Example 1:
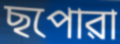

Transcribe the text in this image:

ছপোৱা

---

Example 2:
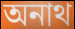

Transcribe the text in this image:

অনাথ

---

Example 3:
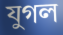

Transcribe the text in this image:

যুগল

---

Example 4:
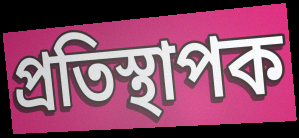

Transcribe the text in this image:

প্ৰতিস্থাপক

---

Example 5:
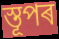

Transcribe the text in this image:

স্তূপৰ